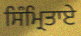
ਸਿੰਮ੍ਰਿਤਾਏ